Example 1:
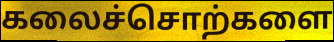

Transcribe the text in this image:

கலைச்சொற்களை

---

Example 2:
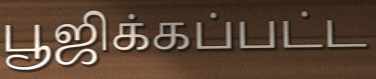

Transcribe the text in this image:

பூஜிக்கப்பட்ட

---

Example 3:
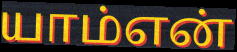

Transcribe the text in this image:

யாம்என்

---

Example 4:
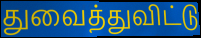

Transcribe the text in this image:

துவைத்துவிட்டு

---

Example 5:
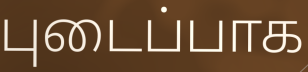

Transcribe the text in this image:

புடைப்பாக